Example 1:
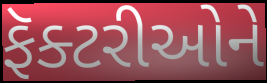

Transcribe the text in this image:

ફૅક્ટરીઓને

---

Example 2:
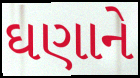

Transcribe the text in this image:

ઘણાને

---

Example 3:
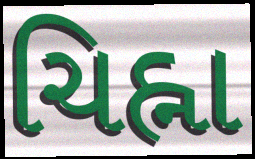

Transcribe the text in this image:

ચિહ્ના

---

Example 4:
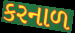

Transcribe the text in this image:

કરનાળ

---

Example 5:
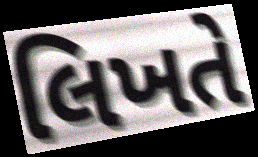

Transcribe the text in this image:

લિખતે